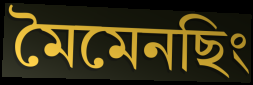
মৈমেনছিং